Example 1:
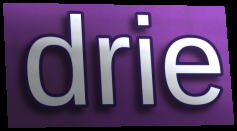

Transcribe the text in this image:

drie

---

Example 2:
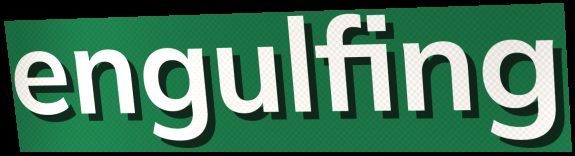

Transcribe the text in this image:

engulfing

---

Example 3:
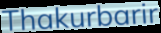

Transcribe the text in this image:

Thakurbarir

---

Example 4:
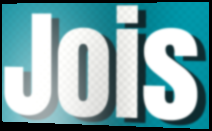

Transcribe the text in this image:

Jois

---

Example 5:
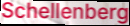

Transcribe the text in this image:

Schellenberg